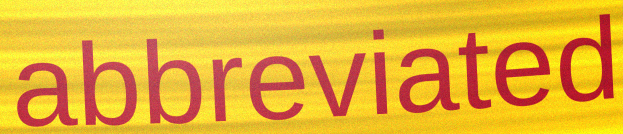
abbreviated